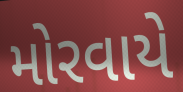
મોરવાયે